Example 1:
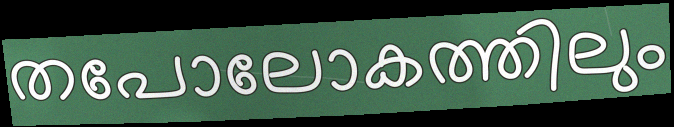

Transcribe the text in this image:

തപോലോകത്തിലും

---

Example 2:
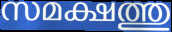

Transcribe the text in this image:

സമക്ഷത്തു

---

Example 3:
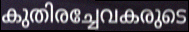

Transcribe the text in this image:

കുതിരച്ചേവകരുടെ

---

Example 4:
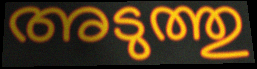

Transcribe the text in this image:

അടുത്തു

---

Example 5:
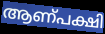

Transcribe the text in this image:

ആണ്പക്ഷി